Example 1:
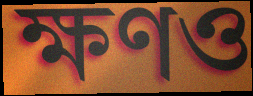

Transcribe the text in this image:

ক্ষণও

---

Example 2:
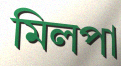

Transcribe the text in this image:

মিলপা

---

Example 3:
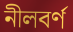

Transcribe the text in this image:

নীলবর্ণ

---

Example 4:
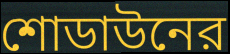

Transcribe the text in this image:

শোডাউনের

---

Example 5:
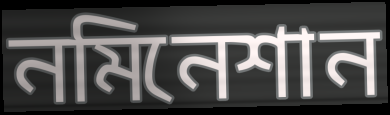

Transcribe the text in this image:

নমিনেশান